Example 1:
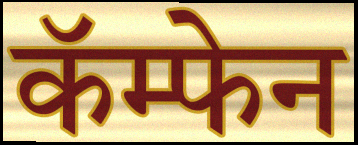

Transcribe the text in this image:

कॅम्फेन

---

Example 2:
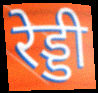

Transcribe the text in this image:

रेड्डी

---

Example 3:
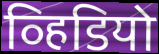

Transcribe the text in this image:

व्हिडियो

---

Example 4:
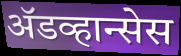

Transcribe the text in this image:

ॲडव्हान्सेस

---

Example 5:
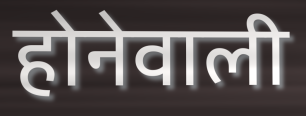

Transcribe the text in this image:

होनेवाली